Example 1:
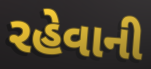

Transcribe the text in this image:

રહેવાની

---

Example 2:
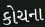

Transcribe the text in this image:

કોચના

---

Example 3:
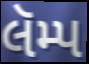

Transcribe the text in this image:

લૅમ્પ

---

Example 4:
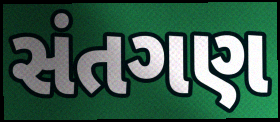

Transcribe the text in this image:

સંતગણ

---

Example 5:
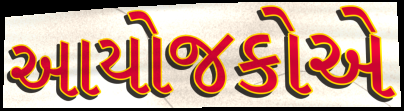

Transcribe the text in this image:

આયોજકોએ